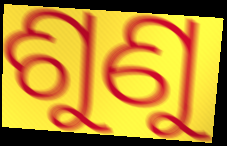
ଶୁଣୁ